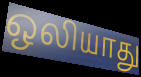
ஒலியாது